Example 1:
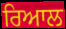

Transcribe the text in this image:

ਰਿਆਲ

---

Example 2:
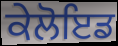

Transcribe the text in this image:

ਕੇਲੋਇਡ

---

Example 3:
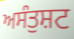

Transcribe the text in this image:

ਅਸੰਤੁਸ਼ਟ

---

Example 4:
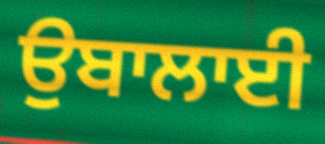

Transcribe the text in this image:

ਉਬਾਲਾਈ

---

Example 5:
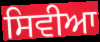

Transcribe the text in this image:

ਸਿਵੀਆ